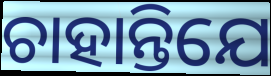
ଚାହାନ୍ତିଯେ